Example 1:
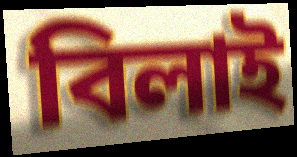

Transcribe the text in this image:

বিলাই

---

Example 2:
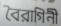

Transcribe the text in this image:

বৈরাগিনী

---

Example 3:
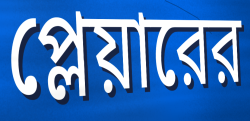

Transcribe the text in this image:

প্লেয়ারের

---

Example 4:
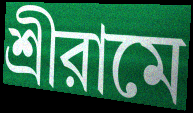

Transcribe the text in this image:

শ্রীরামে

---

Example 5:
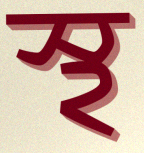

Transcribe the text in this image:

স্থ